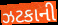
ઝટકાની